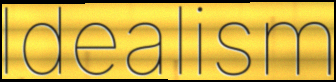
Idealism